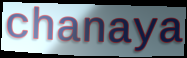
chanaya